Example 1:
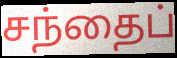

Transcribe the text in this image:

சந்தைப்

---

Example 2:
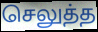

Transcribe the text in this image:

செலுத்த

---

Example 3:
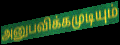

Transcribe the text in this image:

அனுபவிக்கமுடியும்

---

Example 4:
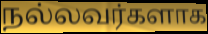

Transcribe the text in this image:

நல்லவர்களாக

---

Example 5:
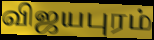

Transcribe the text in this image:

விஜயபுரம்